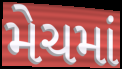
મેચમાં